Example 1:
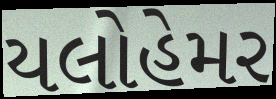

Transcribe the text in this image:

યલોહેમર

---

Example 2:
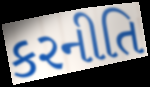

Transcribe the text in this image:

કરનીતિ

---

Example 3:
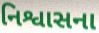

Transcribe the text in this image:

નિશ્વાસના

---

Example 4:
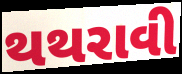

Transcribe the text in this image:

થથરાવી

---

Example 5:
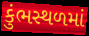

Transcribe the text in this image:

કુંભસ્થળમાં